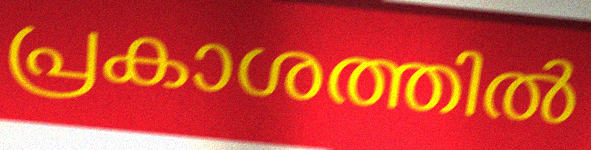
പ്രകാശത്തിൽ